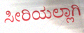
ಸೀರಿಯಲ್ಲಾಗಿ